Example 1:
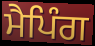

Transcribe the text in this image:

ਮੈਪਿੰਗ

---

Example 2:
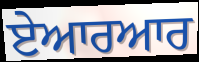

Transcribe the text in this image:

ਏਆਰਆਰ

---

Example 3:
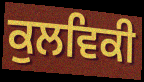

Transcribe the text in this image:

ਕੁਲਵਿਕੀ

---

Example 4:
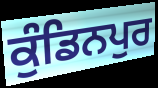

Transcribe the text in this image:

ਕੁੰਡਿਨਪੁਰ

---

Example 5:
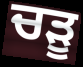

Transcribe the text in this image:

ਚੜੂ